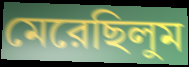
মেরেছিলুম